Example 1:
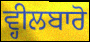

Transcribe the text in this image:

ਵ੍ਹੀਲਬਾਰੋ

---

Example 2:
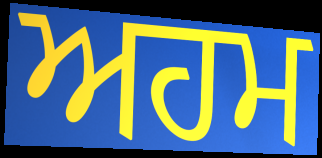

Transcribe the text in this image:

ਅਹਮ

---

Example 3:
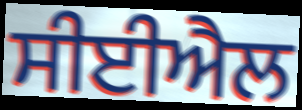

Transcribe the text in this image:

ਸੀਈਐਲ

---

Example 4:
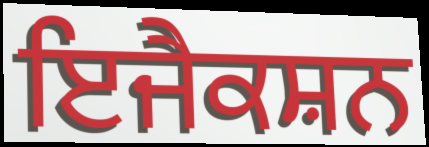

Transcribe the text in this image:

ਇਜੈਕਸ਼ਨ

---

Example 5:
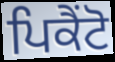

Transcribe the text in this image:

ਪਿਕੈਂਟੋ